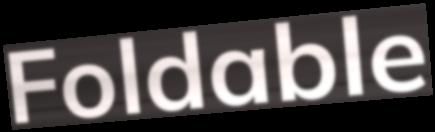
Foldable